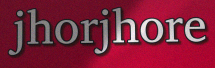
jhorjhore